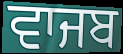
ਵਾਜਬ